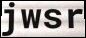
jwsr